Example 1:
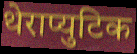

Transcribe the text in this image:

थेराप्युटिक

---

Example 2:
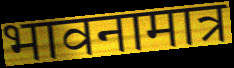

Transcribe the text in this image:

भावनामात्र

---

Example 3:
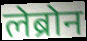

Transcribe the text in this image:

लेब्रोन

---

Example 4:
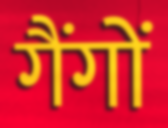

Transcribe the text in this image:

गैंगों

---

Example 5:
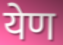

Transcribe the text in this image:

येण